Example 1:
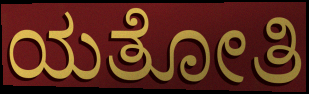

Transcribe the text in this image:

ಯತೋತಿ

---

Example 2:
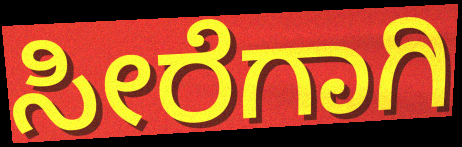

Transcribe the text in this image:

ಸೀರೆಗಾಗಿ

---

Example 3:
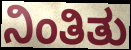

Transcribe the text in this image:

ನಿಂತಿತು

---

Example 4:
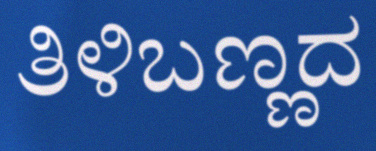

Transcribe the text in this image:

ತಿಳಿಬಣ್ಣದ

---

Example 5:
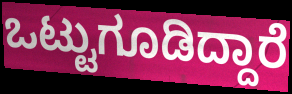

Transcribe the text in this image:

ಒಟ್ಟುಗೂಡಿದ್ದಾರೆ